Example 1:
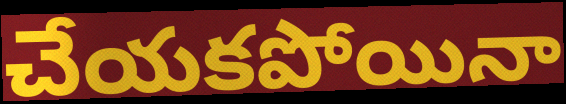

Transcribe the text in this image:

చేయకపోయినా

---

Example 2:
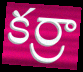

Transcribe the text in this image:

కర్రా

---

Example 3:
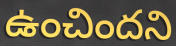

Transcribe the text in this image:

ఉంచిందని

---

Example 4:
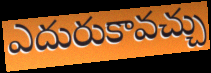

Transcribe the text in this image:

ఎదురుకావచ్చు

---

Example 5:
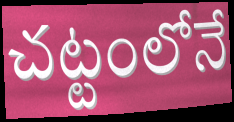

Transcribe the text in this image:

చట్టంలోనే